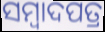
ସମ୍ବାଦପତ୍ର